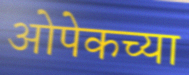
ओपेकच्या